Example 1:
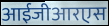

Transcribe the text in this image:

आईजीआरएस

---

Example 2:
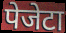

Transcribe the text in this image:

पेजेटा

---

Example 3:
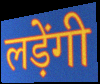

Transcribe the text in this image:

लड़ेंगी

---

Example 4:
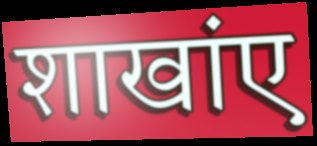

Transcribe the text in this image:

शाखांए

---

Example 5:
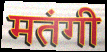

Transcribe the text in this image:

मतंगी